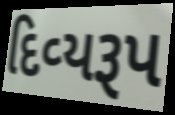
દિવ્‍યરૂપ